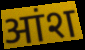
आंश